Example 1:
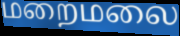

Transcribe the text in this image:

மறைமலை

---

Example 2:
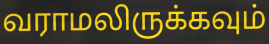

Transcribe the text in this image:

வராமலிருக்கவும்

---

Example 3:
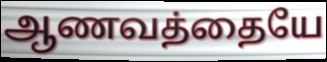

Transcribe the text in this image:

ஆணவத்தையே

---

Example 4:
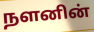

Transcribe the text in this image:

நளனின்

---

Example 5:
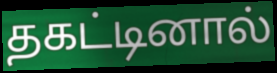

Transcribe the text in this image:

தகட்டினால்